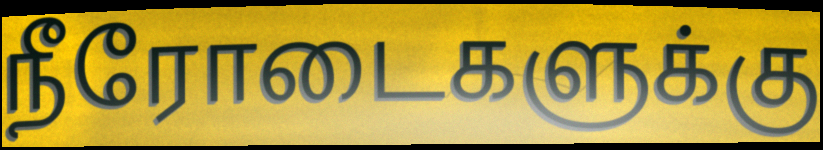
நீரோடைகளுக்கு